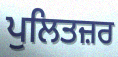
ਪੁਲਿਤਜ਼ਰ